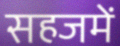
सहजमें